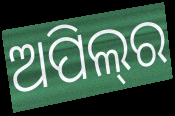
ଅପିଲ୍‍ର